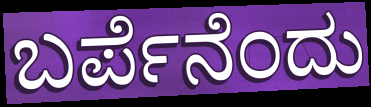
ಬರ್ಪೆನೆಂದು